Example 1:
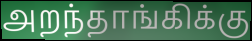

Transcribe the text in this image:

அறந்தாங்கிக்கு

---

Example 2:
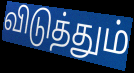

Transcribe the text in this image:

விடுத்தும்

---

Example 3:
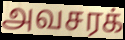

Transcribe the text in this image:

அவசரக்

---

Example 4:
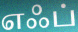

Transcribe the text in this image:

எஃப்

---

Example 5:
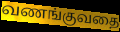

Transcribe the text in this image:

வணங்குவதை